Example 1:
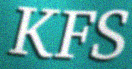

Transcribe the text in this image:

KFS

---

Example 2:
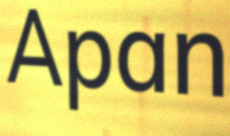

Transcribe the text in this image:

Apan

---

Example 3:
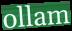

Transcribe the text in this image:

ollam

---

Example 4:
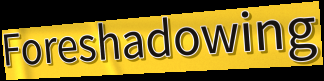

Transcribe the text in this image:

Foreshadowing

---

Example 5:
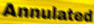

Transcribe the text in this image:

Annulated